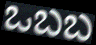
ಒಬಬ